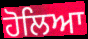
ਹੋਲਿਆ